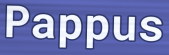
Pappus